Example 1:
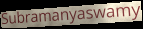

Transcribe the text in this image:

Subramanyaswamy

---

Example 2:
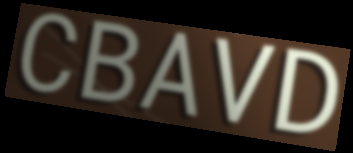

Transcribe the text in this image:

CBAVD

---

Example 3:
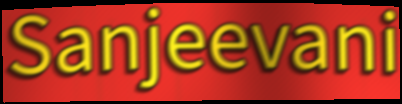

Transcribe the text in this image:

Sanjeevani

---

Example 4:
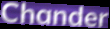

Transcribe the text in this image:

Chander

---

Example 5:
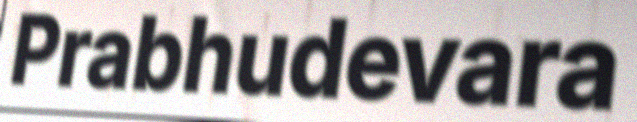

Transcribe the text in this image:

Prabhudevara